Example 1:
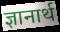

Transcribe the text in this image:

ज्ञानार्थ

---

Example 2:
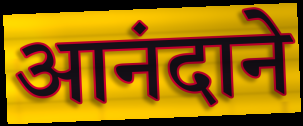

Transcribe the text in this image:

आनंदाने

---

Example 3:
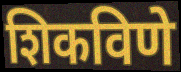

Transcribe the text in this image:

शिकविणे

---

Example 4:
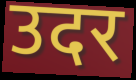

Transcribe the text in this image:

उदर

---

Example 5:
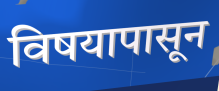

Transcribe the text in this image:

विषयापासून